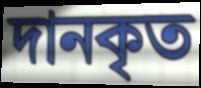
দানকৃত